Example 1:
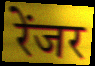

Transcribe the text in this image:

रेंजर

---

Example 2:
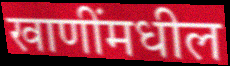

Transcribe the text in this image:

खाणींमधील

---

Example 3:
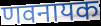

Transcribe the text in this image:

णवनायक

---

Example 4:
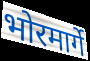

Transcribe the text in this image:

भोरमार्गे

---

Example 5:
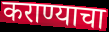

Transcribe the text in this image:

कराण्याचा